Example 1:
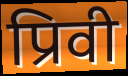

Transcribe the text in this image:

प्रिवी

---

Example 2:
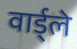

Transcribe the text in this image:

वार्ड्ले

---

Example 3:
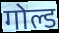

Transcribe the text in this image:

गोल्‍ड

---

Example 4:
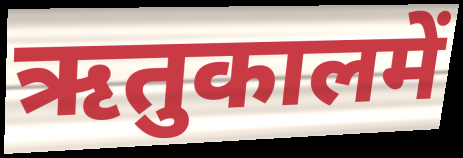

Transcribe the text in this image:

ऋतुकालमें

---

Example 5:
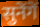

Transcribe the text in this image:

सुनेंगें